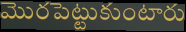
మొరపెట్టుకుంటారు